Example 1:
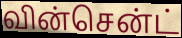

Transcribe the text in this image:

வின்சென்ட்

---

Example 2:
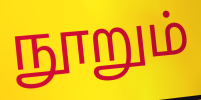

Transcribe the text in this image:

நூறும்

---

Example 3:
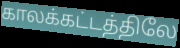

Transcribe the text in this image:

காலக்கட்டத்திலே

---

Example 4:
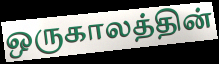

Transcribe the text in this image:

ஒருகாலத்தின்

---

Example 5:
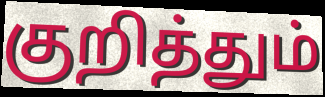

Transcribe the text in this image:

குறித்தும்